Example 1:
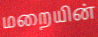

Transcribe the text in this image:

மறையின்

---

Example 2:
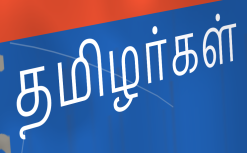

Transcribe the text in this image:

தமிழர்கள்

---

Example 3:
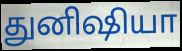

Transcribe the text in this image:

துனிஷியா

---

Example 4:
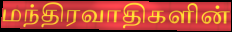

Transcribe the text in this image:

மந்திரவாதிகளின்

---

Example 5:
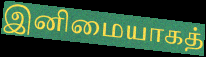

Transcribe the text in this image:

இனிமையாகத்